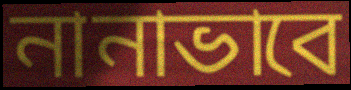
নানাভাবে